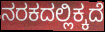
ನರಕದಲ್ಲಿಕ್ಕದೆ